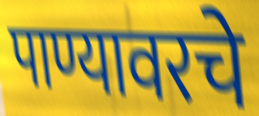
पाण्यावरचे